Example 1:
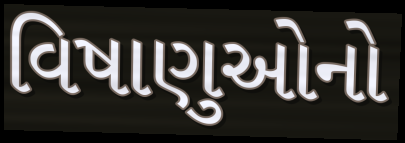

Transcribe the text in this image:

વિષાણુઓનો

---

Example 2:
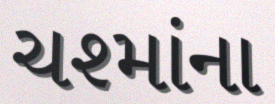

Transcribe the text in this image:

ચશ્માંના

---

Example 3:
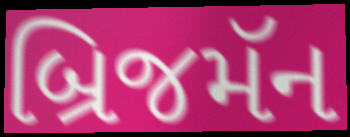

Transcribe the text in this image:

બ્રિજમૅન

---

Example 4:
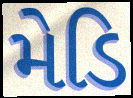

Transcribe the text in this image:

મેડિ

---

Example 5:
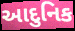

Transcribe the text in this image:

આદુનિક